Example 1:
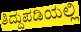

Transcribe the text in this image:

ತಿದ್ದುಪಡಿಯಲ್ಲಿ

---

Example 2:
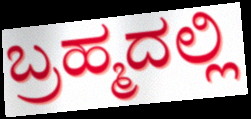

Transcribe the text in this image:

ಬ್ರಹ್ಮದಲ್ಲಿ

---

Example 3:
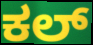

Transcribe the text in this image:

ಕಲ್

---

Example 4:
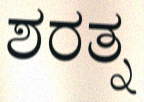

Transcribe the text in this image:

ಶರತ್ನ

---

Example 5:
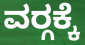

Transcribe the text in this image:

ವರ‍್ಗಕ್ಕೆ